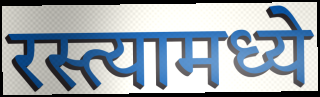
रस्त्यामध्ये